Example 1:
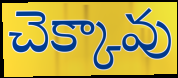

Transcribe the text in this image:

చెక్కావు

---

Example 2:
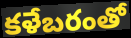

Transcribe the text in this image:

కళేబరంతో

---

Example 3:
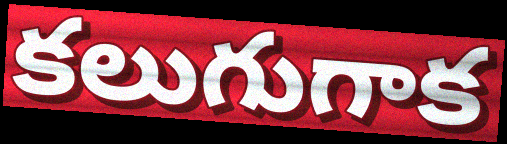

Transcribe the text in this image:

కలుగుగాక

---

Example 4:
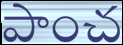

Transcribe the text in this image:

పాంచ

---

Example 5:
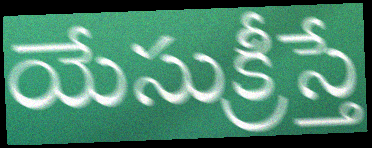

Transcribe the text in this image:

యేసుక్రీస్తే